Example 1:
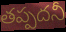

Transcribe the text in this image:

తప్పదనీ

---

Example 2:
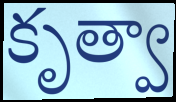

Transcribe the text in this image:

కృత్వా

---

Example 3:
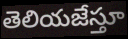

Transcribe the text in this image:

తెలియజేస్తూ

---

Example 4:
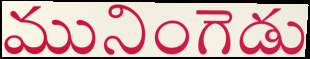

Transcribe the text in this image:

మునింగెడు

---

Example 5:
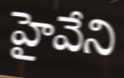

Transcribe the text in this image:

హైవేని